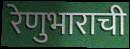
रेणुभाराची